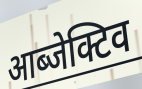
आब्जेक्टिव